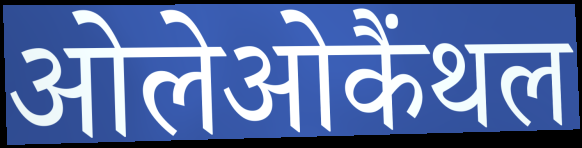
ओलेओकैंथल